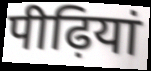
पीढ़ियां